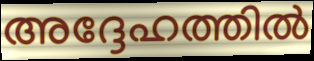
അദ്ദേഹത്തിൽ